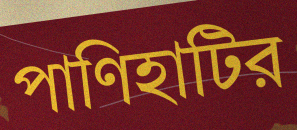
পাণিহাটির